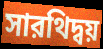
সারথিদ্বয়